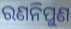
ରଣନିପୁଣ